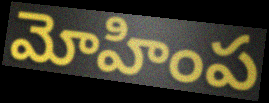
మోహింప